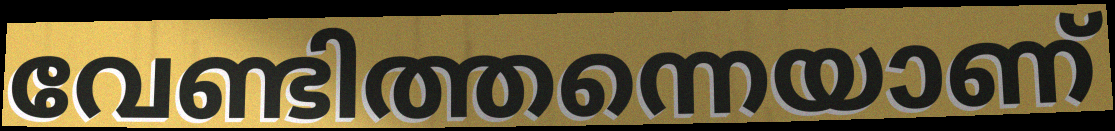
വേണ്ടിത്തന്നെയാണ്